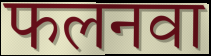
फलनवा